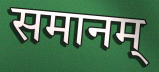
समानम्